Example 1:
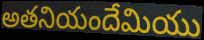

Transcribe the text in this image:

అతనియందేమియు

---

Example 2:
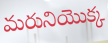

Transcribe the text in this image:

మరునియొక్క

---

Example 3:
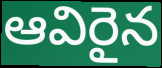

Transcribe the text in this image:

ఆవిరైన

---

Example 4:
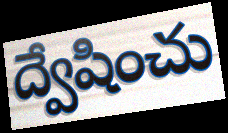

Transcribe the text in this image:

ద్వేషించు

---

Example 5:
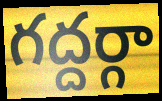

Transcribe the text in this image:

గద్దర్గా